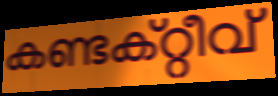
കണ്ടക്റ്റീവ്